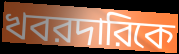
খবরদারিকে